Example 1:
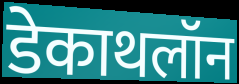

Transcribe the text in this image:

डेकाथलॉन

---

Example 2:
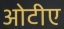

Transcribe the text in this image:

ओटीए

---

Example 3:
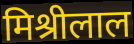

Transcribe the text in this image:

मिश्रीलाल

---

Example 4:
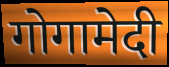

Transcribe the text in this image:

गोगामेदी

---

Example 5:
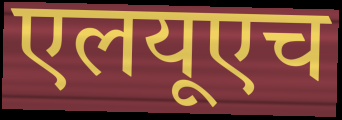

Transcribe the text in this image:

एलयूएच